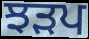
ਝੜਪ